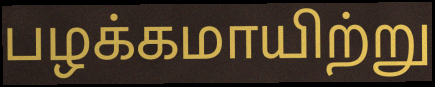
பழக்கமாயிற்று